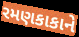
રમણકાકાને